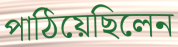
পাঠিয়েছিলেন